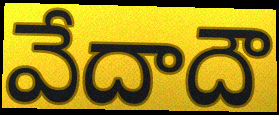
వేదాదౌ